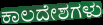
ಕಾಲದೇಶಗಳು